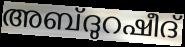
അബ്ദുറഷീദ്